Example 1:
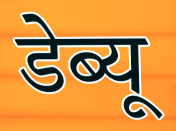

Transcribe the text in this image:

डेब्यू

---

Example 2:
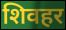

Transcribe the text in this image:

शिवहर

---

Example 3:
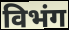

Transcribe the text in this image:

विभंग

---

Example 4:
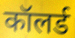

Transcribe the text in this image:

कॉलर्ड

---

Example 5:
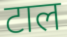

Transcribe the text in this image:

टाल